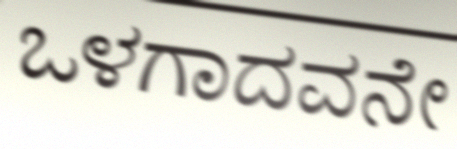
ಒಳಗಾದವನೇ